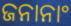
ଜନାନାଂ